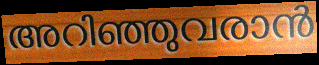
അറിഞ്ഞുവരാൻ